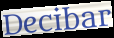
Decibar